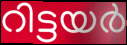
റിട്ടയർ